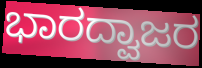
ಭಾರದ್ವಾಜರ